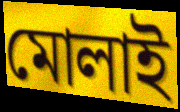
মোলাই